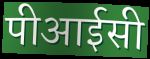
पीआईसी